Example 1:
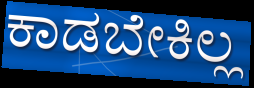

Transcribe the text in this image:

ಕಾಡಬೇಕಿಲ್ಲ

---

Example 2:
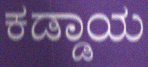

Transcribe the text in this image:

ಕಡ್ಡಾಯ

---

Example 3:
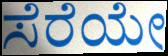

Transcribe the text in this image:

ಸೆರೆಯೇ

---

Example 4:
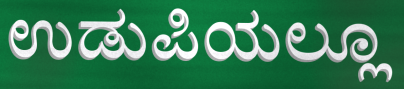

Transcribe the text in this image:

ಉಡುಪಿಯಲ್ಲೂ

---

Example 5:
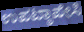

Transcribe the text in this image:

ಉಪಟ್ಠಾಪೇಸಿ